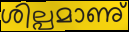
ശില്പമാണു്